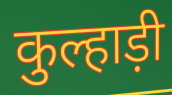
कुल्हाड़ी